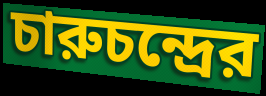
চারুচন্দ্রের